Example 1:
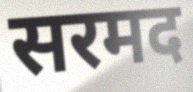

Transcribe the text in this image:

सरमद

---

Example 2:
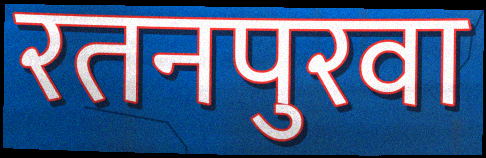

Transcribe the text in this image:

रतनपुरवा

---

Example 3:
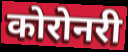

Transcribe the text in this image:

कोरोनरी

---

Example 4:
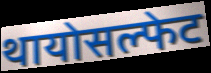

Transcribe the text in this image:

थायोसल्फेट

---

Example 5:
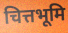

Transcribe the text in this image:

चित्तभूमि